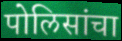
पोलिसांचा